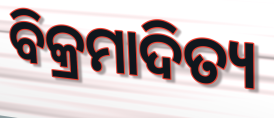
ବିକ୍ରମାଦିତ୍ୟ